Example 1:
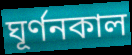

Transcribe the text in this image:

ঘূর্ণনকাল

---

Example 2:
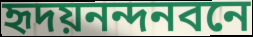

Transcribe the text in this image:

হৃদয়নন্দনবনে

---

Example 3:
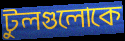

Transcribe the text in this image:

টুলগুলোকে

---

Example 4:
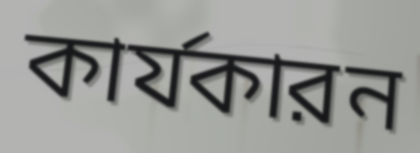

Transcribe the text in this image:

কার্যকারন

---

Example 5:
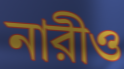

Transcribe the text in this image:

নারীও